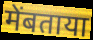
मेंबताया